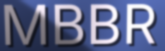
MBBR